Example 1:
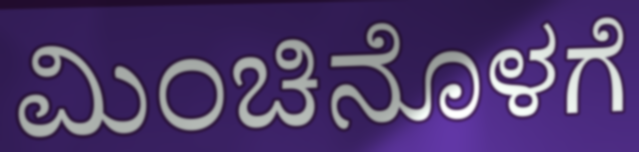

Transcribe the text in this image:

ಮಿಂಚಿನೊಳಗೆ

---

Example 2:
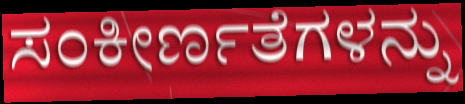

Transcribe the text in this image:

ಸಂಕೀರ್ಣತೆಗಳನ್ನು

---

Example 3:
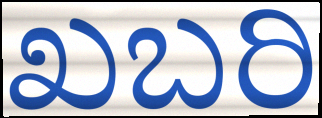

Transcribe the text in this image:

ಖಬರಿ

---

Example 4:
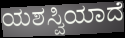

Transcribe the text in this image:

ಯಶಸ್ವಿಯಾದೆ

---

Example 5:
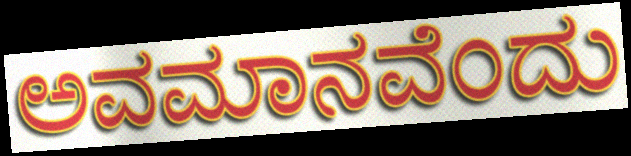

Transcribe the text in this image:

ಅವಮಾನವೆಂದು